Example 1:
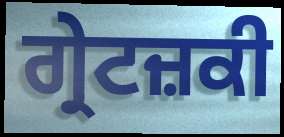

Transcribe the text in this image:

ਗ੍ਰੇਟਜ਼ਕੀ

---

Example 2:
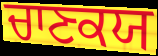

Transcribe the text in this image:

ਚਾਣਕਯ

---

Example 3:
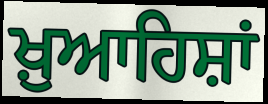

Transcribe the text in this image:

ਖ਼ੁਆਹਿਸ਼ਾਂ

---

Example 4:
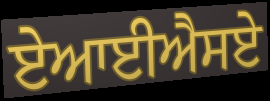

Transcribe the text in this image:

ਏਆਈਐਸਏ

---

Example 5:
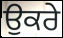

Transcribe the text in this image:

ਉਕਰੇ